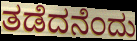
ತಡೆದನೆಂದು